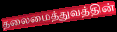
தலைமைத்துவத்தின்